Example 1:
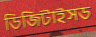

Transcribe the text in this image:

ডিজিটাইসড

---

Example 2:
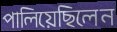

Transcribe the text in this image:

পালিয়েছিলেন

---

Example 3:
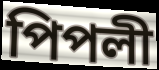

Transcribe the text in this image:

পিপলী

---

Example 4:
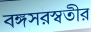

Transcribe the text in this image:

বঙ্গসরস্বতীর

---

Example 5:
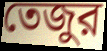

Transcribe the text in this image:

তেজুর